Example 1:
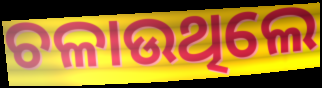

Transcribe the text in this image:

ଚଳାଉଥିଲେ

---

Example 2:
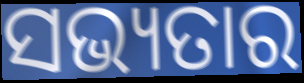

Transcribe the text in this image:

ସଭ୍ୟତାର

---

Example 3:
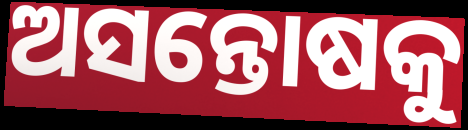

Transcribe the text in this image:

ଅସନ୍ତୋଷକୁ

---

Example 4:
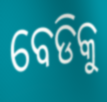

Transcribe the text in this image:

ବେଡିକୁ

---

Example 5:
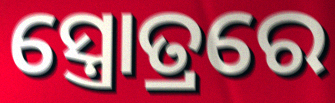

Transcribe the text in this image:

ସ୍ତ୍ରୋତ୍ରରେ